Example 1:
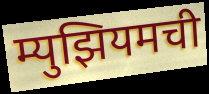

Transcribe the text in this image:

म्युझियमची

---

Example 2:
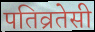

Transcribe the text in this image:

पतिव्रतेसी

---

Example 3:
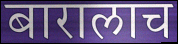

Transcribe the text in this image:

बारालाच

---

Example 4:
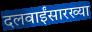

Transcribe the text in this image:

दलवाईंसारख्या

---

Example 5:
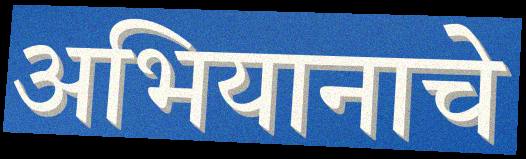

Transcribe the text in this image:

अभियानाचे